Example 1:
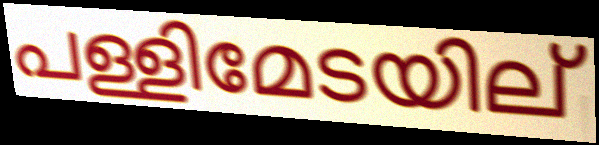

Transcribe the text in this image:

പള്ളിമേടയില്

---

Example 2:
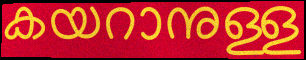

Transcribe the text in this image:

കയറാനുള്ള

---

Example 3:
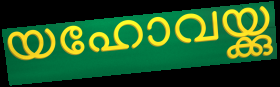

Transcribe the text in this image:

യഹോവയ്ക്കു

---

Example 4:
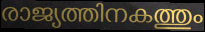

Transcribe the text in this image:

രാജ്യത്തിനകത്തും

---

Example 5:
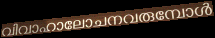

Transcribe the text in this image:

വിവാഹാലോചനവരുമ്പോൾ